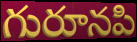
గురూనపి